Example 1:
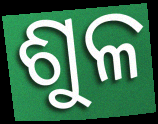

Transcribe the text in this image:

ଶୁଳ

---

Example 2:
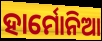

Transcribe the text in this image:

ହାର୍ମୋନିଆ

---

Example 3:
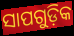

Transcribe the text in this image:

ସାପଗୁଡ଼ିକ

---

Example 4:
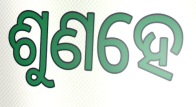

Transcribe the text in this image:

ଶୁଣହେ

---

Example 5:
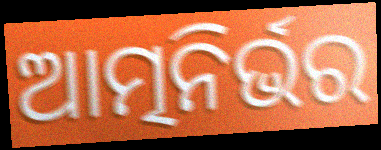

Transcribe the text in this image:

ଆତ୍ମନିର୍ଭର